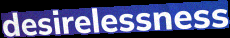
desirelessness